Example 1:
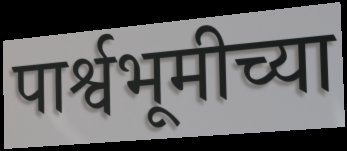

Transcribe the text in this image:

पार्श्वभूमीच्या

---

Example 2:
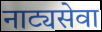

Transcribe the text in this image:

नाट्यसेवा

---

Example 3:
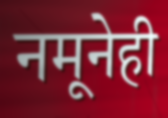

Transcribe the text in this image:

नमूनेही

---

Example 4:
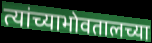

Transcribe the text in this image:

त्यांच्याभोवतालच्या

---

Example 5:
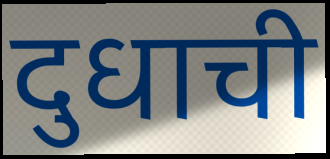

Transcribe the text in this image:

दुधाची